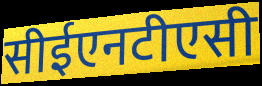
सीईएनटीएसी